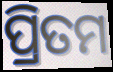
ପ୍ରିତମ